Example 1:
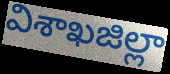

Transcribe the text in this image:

విశాఖజిల్లా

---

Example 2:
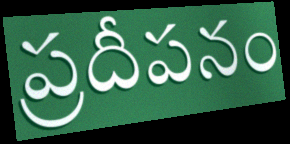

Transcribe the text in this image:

ప్రదీపనం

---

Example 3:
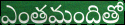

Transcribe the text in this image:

ఎంతమందితో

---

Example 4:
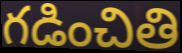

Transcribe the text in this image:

గడించితి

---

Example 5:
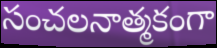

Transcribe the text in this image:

సంచలనాత్మకంగా